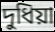
দুধিয়া